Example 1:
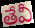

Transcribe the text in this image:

తేవీ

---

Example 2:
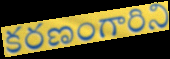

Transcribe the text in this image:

కరణంగారిని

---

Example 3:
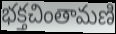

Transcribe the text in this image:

భక్తచింతామణి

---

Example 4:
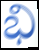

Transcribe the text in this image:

భి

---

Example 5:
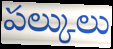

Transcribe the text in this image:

పల్కులు